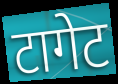
टागेट